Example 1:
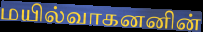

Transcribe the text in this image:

மயில்வாகனனின்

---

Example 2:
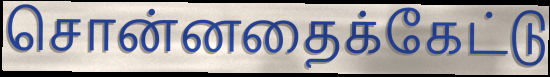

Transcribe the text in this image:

சொன்னதைக்கேட்டு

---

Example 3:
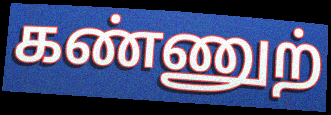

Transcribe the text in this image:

கண்ணுற்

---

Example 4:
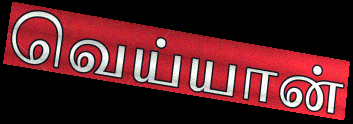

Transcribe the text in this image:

வெய்யான்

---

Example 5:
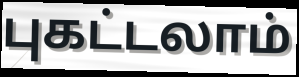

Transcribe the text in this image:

புகட்டலாம்